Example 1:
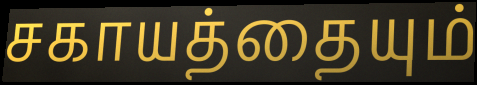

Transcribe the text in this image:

சகாயத்தையும்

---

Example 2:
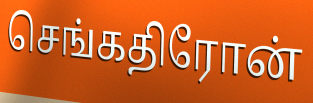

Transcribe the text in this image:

செங்கதிரோன்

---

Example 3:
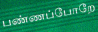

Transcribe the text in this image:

பண்ணப்போறே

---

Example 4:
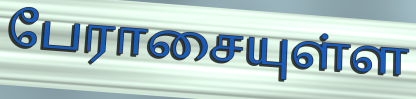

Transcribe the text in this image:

பேராசையுள்ள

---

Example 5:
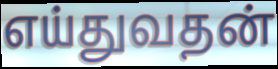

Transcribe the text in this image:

எய்துவதன்